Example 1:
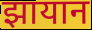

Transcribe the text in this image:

झायान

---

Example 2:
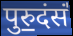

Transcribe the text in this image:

पुरु॒दंसं॑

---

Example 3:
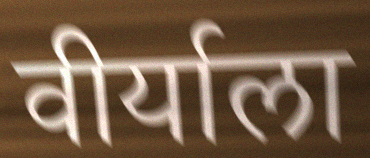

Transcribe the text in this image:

वीर्याला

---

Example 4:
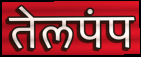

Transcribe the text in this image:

तेलपंप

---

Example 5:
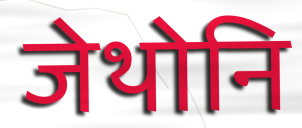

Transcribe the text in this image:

जेथोनि